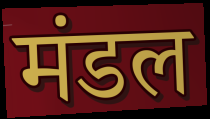
मंडल